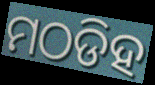
ମଠଡିହ